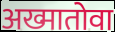
अख्मातोवा